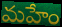
మహేం